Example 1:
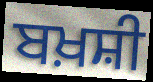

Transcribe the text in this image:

ਬਖ਼ਸ਼ੀ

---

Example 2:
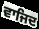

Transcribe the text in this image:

ਵਾਜਿਦ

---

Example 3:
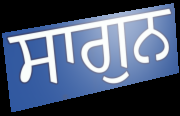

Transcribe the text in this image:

ਸਾਗੁਨ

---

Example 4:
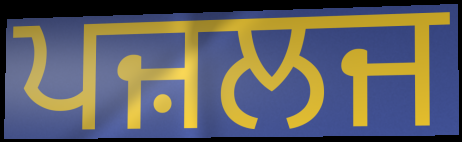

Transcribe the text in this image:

ਪਜ਼ਲਜ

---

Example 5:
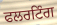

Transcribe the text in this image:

ਫਲਰਟਿੰਗ